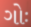
ગોઃ